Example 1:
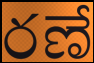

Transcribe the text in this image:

రణే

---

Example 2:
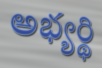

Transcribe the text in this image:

అభ్యర్థి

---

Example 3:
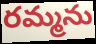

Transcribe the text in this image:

రమ్మను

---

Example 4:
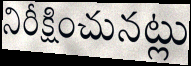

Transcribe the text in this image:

నిరీక్షించునట్లు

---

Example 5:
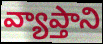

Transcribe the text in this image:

వ్యాప్తాని